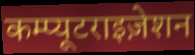
कम्प्यूटराइज़ेशन